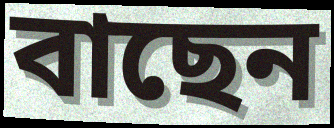
বাছেন